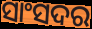
ସାଂସଦର